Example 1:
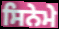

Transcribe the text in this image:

ਸਿਨੇਮੇ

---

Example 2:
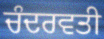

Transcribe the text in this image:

ਚੰਦਰਵਤੀ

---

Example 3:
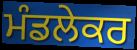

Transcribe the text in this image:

ਮੰਡਲੇਕਰ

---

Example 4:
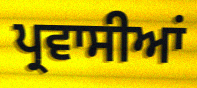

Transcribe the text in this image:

ਪ੍ਰਵਾਸੀਆਂ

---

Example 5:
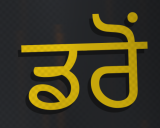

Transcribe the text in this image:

ਡਰੋਂ